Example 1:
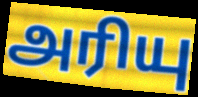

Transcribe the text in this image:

அரியு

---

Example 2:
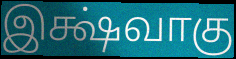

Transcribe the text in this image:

இக்ஷ்வாகு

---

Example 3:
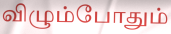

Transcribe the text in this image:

விழும்போதும்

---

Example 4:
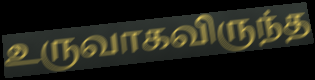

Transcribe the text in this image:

உருவாகவிருந்த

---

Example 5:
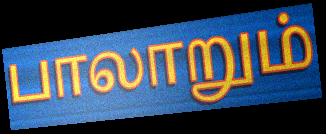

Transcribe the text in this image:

பாலாறும்